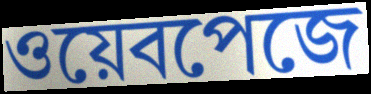
ওয়েবপেজে